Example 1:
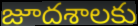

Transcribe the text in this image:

జూదశాలకు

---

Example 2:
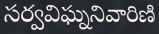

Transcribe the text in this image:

సర్వవిఘ్ననివారిణి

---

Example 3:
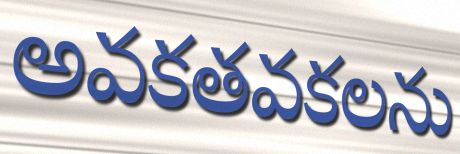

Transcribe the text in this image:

అవకతవకలను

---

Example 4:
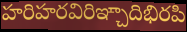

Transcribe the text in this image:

హరిహరవిరిఞ్చాదిభిరపి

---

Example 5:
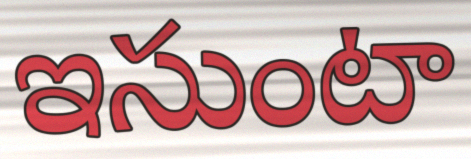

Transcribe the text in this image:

ఇసుంటా